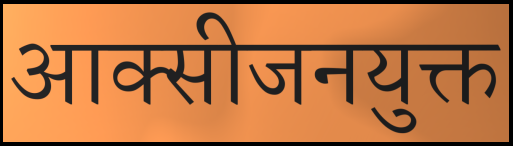
आक्सीजनयुक्त